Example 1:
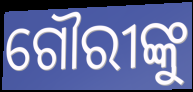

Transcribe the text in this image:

ଗୌରୀଙ୍କୁ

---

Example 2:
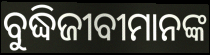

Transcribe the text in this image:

ବୁଦ୍ଧିଜୀବୀମାନଙ୍କ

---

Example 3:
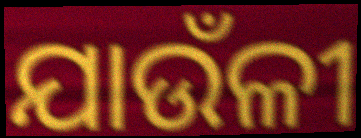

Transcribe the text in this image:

ଯାଉଁଳୀ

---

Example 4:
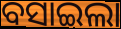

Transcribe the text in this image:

ବସାଇଲା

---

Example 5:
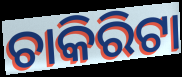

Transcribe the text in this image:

ଚାକିରିଟା